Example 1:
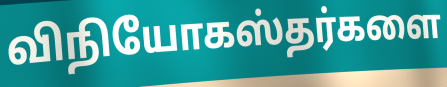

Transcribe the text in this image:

விநியோகஸ்தர்களை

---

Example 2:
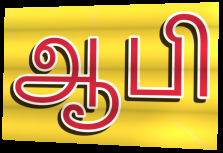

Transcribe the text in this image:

ஆபி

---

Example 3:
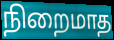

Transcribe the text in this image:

நிறைமாத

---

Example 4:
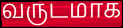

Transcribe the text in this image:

வருடமாக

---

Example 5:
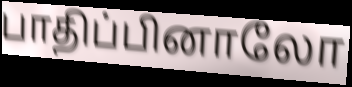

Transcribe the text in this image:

பாதிப்பினாலோ